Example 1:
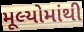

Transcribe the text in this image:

મૂલ્યોમાંથી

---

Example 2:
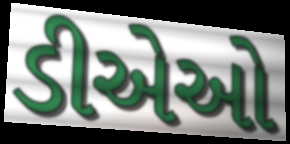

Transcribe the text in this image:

ડીએઓ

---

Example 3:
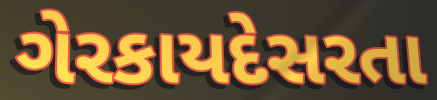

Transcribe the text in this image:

ગેરકાયદેસરતા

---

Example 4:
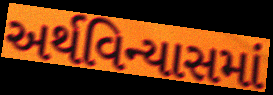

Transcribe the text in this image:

અર્થવિન્યાસમાં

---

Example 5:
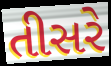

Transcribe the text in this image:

તીસરે